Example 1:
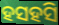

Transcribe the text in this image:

ହସହସି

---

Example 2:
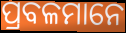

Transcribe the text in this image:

ପ୍ରବଳମାନେ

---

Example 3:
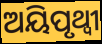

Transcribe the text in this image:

ଅୟିପୃଥ୍ୱୀ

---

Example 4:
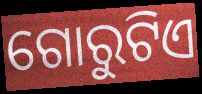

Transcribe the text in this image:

ଗୋରୁଟିଏ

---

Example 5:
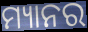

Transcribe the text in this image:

ମ୍ୟାନର